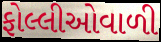
ફોલ્લીઓવાળી